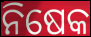
ନିଷେକ